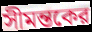
সীমন্তকের